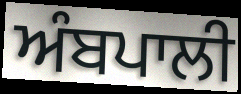
ਅੰਬਪਾਲੀ